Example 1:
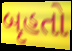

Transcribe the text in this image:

બૃહતો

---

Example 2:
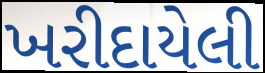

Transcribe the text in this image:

ખરીદાયેલી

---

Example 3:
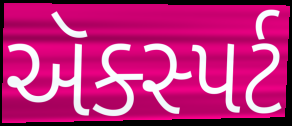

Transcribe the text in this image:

ઍક્સ્પર્ટ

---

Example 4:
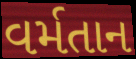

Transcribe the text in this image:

વર્મતાન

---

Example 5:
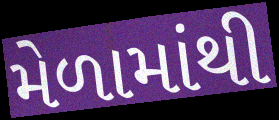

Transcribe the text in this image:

મેળામાંથી